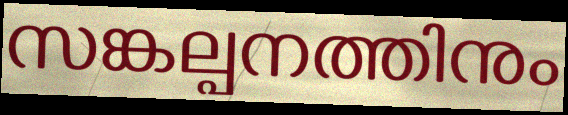
സങ്കല്പനത്തിനും